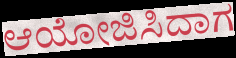
ಆಯೋಜಿಸಿದಾಗ